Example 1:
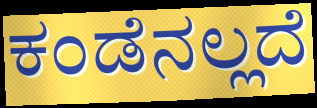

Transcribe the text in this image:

ಕಂಡೆನಲ್ಲದೆ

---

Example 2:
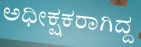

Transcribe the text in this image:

ಅಧೀಕ್ಷಕರಾಗಿದ್ದ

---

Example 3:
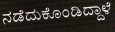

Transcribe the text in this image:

ನಡೆದುಕೊಂಡಿದ್ದಾಳೆ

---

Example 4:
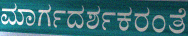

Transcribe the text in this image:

ಮಾರ್ಗದರ್ಶಕರಂತೆ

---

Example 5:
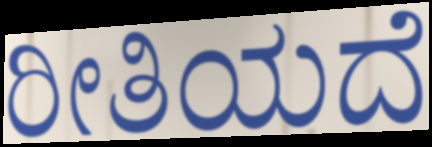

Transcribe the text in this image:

ರೀತಿಯದೆ